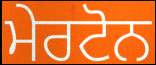
ਮੇਰਟੋਨ